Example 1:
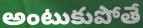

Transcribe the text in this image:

అంటుకుపోతే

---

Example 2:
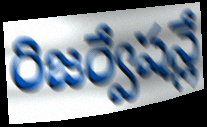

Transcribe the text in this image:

రిజర్వేషన్లే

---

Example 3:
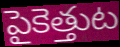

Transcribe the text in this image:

పైకెత్తుట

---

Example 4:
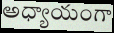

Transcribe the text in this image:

అధ్యాయంగా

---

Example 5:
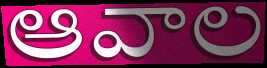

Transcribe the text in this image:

ఆవాల